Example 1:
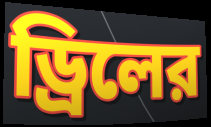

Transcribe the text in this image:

ড্রিলের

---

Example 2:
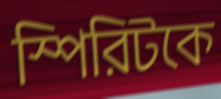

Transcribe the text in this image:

স্পিরিটকে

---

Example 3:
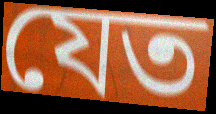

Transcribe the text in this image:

যেত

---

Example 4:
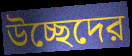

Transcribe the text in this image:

উচ্ছেদের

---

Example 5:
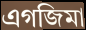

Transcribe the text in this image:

এগজিমা